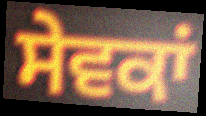
ਸੇਵਕਾਂ